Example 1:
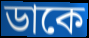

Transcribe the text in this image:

ডাকে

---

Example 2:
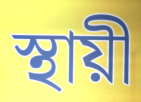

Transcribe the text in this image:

স্থায়ী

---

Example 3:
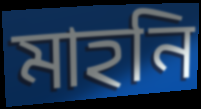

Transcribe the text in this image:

মাহনি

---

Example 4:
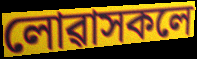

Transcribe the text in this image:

লোৱাসকলে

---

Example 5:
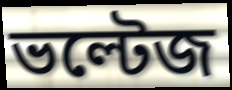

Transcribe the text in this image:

ভল্টেজ